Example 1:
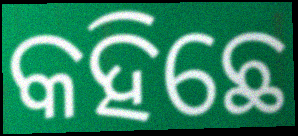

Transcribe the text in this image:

କହିଛେ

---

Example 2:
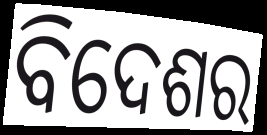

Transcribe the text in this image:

ବିଦେଶର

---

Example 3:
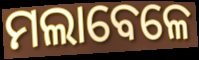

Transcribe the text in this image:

ମଲାବେଳେ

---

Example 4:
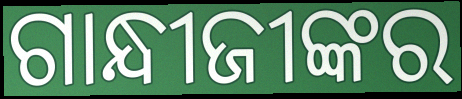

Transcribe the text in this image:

ଗାନ୍ଧୀଜୀଙ୍କର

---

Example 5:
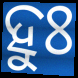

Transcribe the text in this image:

ହୁଃ